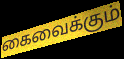
கைவைக்கும்